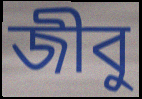
জীবু